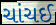
ચાંચઈ